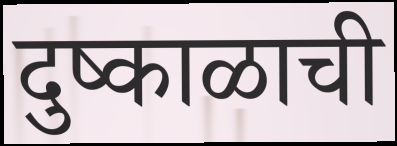
दुष्काळाची